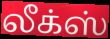
லீக்ஸ்